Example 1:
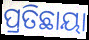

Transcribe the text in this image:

ପ୍ରତିଛାୟା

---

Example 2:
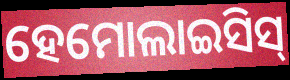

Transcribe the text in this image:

ହେମୋଲାଇସିସ୍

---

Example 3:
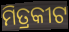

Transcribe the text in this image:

ମିତ୍ରକୀଟ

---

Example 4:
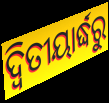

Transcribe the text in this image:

ଦ୍ଵିତୀୟାର୍ଦ୍ଧରୁ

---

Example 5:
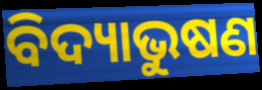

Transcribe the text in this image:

ବିଦ୍ୟାଭୁଷଣ